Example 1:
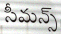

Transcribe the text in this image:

సీమన్స్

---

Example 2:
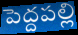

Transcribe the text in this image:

పెద్దపల్లి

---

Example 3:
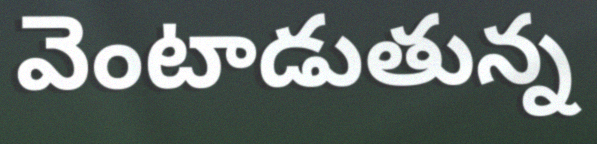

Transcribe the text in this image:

వెంటాడుతున్న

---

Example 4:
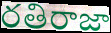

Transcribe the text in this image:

రతిరాజా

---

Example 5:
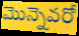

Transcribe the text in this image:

మొన్నెవరో